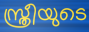
സ്ത്രീയുടെ